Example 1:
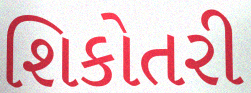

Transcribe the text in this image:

શિકોતરી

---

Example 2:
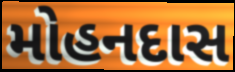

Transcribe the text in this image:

મોહનદાસ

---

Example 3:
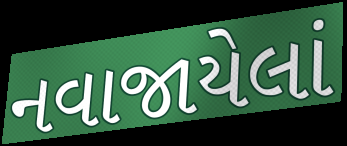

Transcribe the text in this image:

નવાજાયેલાં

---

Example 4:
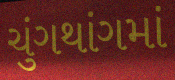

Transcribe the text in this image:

ચુંગથાંગમાં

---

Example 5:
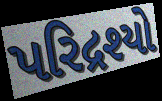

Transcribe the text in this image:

પરિદ્રશ્યો